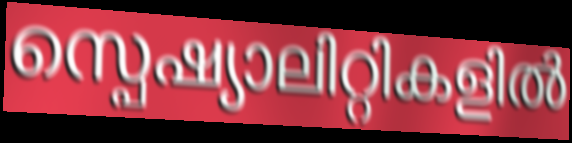
സ്പെഷ്യാലിറ്റികളിൽ